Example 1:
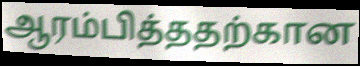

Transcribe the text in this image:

ஆரம்பித்ததற்கான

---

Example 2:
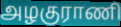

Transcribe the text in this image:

அழகுராணி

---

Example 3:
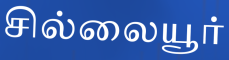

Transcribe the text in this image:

சில்லையூர்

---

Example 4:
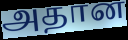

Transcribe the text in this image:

அதான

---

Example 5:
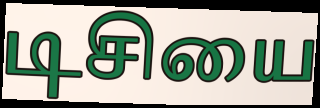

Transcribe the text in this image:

டிசியை